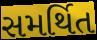
સમર્થિત